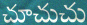
చూచుచు